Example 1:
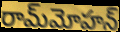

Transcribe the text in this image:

రామ్‌మోహన్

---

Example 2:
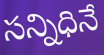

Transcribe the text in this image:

సన్నిధినే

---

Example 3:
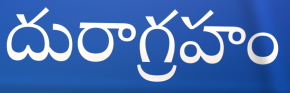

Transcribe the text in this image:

దురాగ్రహం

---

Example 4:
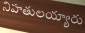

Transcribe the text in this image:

నిహతులయ్యారు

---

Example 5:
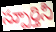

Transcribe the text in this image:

స్పూర్తినీ